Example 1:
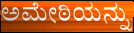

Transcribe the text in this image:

ಅಮೇಠಿಯನ್ನು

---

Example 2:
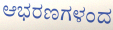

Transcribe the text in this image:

ಆಭರಣಗಳಂದ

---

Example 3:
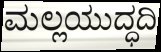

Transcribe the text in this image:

ಮಲ್ಲಯುದ್ಧದಿ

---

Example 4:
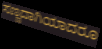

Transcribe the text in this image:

ಸಣ್ಣದಾಗಿಯಾದರೂ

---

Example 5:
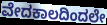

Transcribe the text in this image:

ವೇದಕಾಲದಿಂದಲೇ